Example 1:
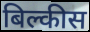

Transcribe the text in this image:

बिल्कीस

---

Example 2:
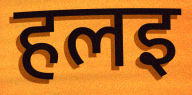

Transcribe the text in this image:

हलइ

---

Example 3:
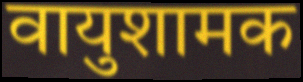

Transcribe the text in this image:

वायुशामक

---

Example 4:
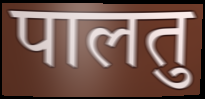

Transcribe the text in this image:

पालतु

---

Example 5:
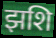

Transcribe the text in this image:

झशि